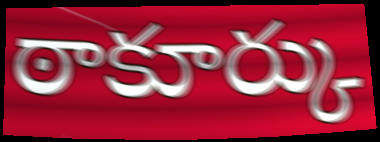
ఠాకూర్కు